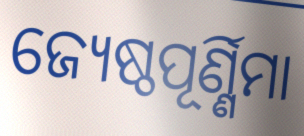
ଜ୍ୟେଷ୍ଠପୂର୍ଣ୍ଣିମା